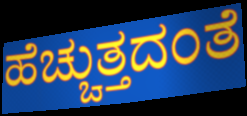
ಹೆಚ್ಚುತ್ತದಂತೆ